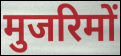
मुजरिमों